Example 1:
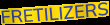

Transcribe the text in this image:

FRETILIZERS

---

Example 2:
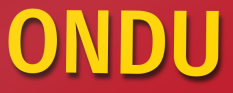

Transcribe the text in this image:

ONDU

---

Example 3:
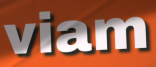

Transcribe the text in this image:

viam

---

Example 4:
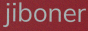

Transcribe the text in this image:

jiboner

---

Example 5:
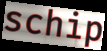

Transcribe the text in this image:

schip